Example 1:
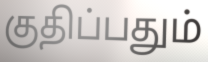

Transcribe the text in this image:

குதிப்பதும்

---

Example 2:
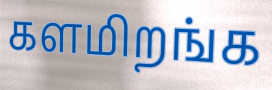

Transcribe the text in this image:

களமிறங்க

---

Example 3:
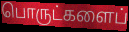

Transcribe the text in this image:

பொருட்களைப்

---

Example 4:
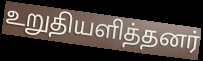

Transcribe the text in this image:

உறுதியளித்தனர்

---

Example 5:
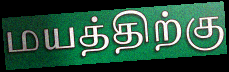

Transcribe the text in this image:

மயத்திற்கு